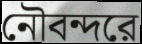
নৌবন্দরে